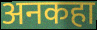
अनकहा